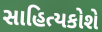
સાહિત્યકોશે